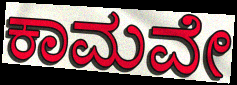
ಕಾಮವೇ